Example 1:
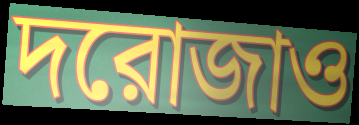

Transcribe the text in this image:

দরোজাও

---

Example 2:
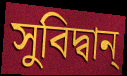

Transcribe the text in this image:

সুবিদ্বান্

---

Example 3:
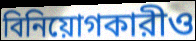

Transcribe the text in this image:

বিনিয়োগকারীও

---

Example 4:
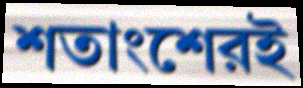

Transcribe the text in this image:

শতাংশেরই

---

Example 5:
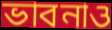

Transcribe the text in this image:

ভাবনাও